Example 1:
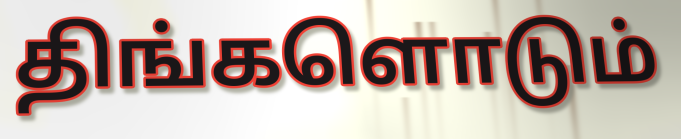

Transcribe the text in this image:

திங்களொடும்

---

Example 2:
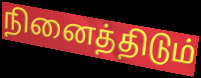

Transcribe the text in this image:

நினைத்திடும்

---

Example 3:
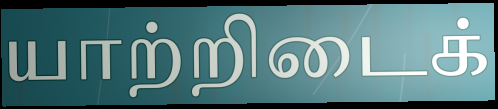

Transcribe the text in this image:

யாற்றிடைக்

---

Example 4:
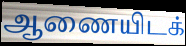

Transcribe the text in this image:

ஆணையிடக்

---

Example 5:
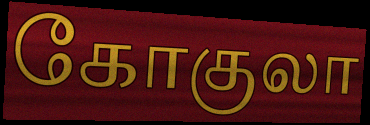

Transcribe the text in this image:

கோகுலா